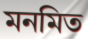
মনমিত